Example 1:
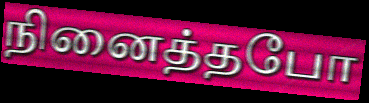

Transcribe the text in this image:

நினைத்தபோ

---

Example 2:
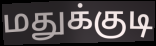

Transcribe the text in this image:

மதுக்குடி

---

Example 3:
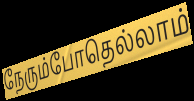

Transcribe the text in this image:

நேரும்போதெல்லாம்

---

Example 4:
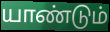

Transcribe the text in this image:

யாண்டும்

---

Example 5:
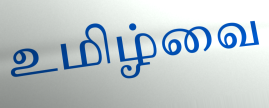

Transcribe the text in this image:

உமிழ்வை